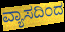
ವ್ಯಾಸದಿಂದ